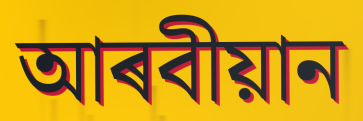
আৰবীয়ান